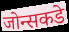
जोन्सकडे